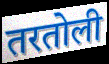
तरतोली